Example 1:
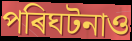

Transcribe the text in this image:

পৰিঘটনাও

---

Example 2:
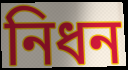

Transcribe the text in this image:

নিধন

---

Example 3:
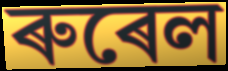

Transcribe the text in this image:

ৰুৰেল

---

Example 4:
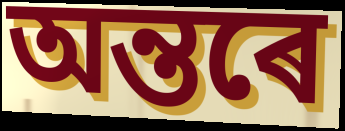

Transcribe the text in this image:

অন্তৰে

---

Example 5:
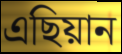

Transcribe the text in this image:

এছিয়ান